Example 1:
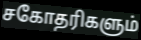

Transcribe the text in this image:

சகோதரிகளும்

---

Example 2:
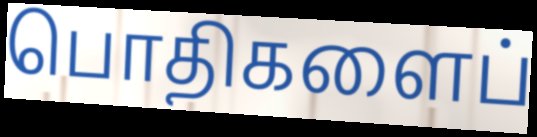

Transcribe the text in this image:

பொதிகளைப்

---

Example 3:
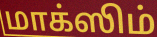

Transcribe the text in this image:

மாக்ஸிம்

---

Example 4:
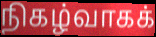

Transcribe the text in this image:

நிகழ்வாகக்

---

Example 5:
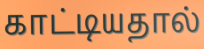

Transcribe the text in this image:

காட்டியதால்